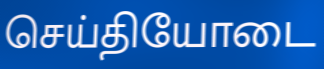
செய்தியோடை